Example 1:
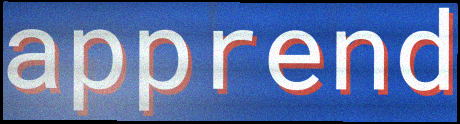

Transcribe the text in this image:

apprend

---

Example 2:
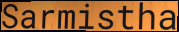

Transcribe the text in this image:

Sarmistha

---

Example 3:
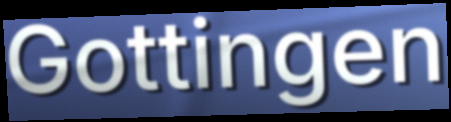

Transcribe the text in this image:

Gottingen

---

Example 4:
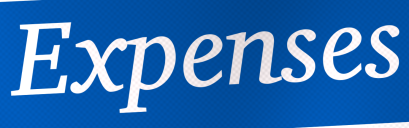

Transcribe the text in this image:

Expenses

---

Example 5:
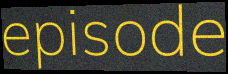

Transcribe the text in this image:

episode